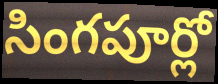
సింగపూర్లో